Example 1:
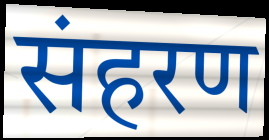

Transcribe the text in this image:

संहरण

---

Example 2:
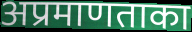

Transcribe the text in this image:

अप्रमाणताका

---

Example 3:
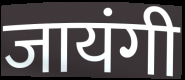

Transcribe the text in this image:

जायंगी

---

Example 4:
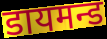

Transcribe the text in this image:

डायमन्ड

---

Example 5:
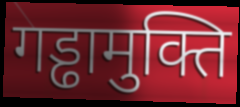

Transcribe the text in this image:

गड्ढामुक्ति